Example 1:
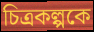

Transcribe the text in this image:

চিত্রকল্পকে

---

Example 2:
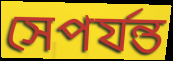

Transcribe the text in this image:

সেপর্যন্ত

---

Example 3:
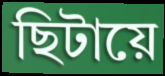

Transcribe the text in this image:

ছিটায়ে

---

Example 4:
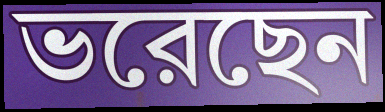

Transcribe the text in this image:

ভরেছেন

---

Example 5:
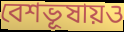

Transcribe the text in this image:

বেশভূষায়ও